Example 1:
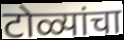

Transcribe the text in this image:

टोळ्यांचा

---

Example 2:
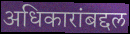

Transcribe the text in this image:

अधिकारांबद्दल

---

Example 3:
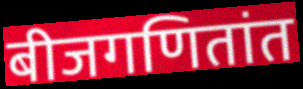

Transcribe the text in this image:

बीजगणितांत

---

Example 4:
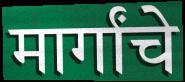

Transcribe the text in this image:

मार्गांचे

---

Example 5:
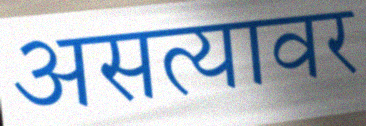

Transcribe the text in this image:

असत्यावर